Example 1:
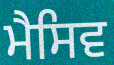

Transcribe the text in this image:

ਮੈਸਿਵ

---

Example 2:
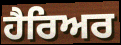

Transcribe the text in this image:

ਹੈਰਿਅਰ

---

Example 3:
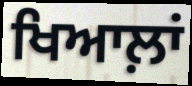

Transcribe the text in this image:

ਖਿਆਲ਼ਾਂ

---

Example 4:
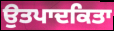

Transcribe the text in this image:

ਉਤਪਾਦਕਿਤਾ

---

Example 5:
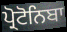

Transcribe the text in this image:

ਪ੍ਰੋਟੋਨਿਬਾ